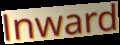
Inward